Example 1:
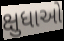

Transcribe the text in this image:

ક્ષુધાઓ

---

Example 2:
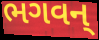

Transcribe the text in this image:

ભગવન્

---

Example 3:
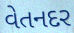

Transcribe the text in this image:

વેતનદર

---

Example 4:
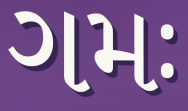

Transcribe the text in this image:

ગમઃ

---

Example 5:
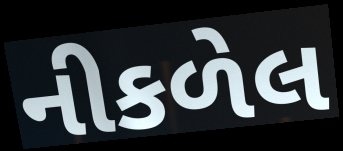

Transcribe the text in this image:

નીકળેલ